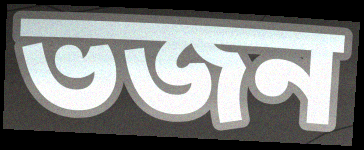
ভজন